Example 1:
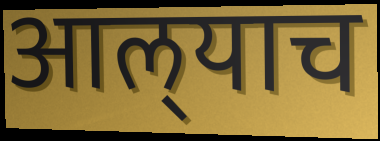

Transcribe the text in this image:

आल्याच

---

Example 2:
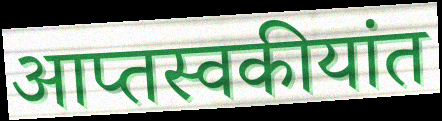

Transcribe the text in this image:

आप्तस्वकीयांत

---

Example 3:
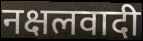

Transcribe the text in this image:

नक्षलवादी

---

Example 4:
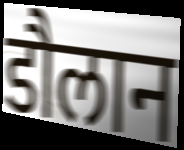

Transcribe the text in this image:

डौलान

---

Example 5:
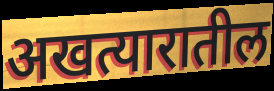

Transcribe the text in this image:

अखत्यारातील